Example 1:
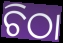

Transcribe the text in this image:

ଚିଠା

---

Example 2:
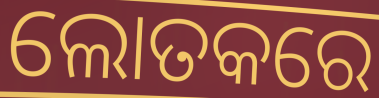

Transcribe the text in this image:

ଲୋତକରେ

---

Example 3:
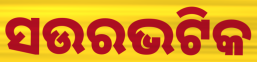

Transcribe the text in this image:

ସଉରଭଟିକ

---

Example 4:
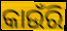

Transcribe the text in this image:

କାଉଁରି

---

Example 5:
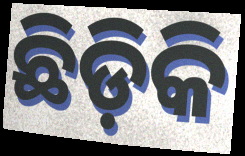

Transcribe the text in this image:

ଛିଡ଼ିକି